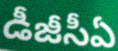
డీజీసీఏ